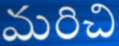
మరిచి